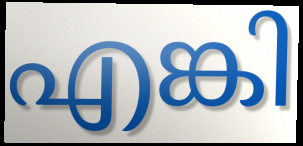
എങ്കി